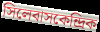
সিলেবাসকেন্দ্রিক